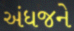
અંધજને